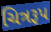
ચિત્રરૂપ